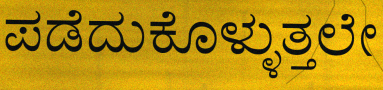
ಪಡೆದುಕೊಳ್ಳುತ್ತಲೇ